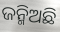
ଜନ୍ମିଅଛି